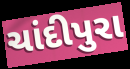
ચાંદીપુરા